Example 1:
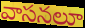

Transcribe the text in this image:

వాసనలూ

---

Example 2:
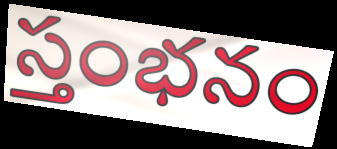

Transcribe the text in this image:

స్తంభనం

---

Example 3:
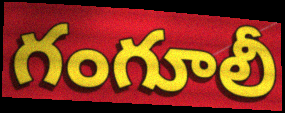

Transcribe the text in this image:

గంగూలీ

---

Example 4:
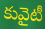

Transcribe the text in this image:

కువైటీ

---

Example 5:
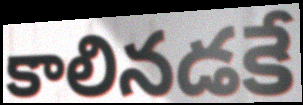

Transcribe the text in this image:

కాలినడకే